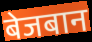
बेजबान